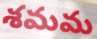
శమమ